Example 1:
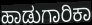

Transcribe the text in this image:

ಹಾಡುಗಾರಿಕಾ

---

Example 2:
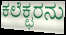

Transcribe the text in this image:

ಕಲೆಕ್ಟರನು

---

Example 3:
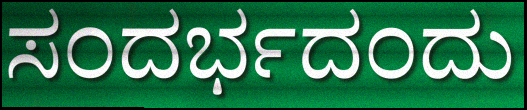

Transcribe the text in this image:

ಸಂದರ್ಭದಂದು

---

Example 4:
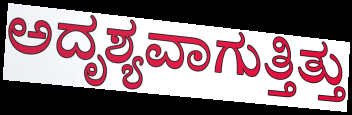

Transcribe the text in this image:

ಅದೃಶ್ಯವಾಗುತ್ತಿತ್ತು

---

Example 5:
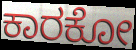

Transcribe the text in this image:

ಕಾರಕೋ